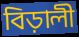
বিড়ালী